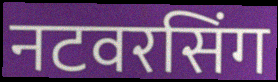
नटवरसिंग